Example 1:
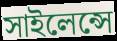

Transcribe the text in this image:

সাইলেন্সে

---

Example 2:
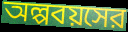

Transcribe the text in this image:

অল্পবয়সের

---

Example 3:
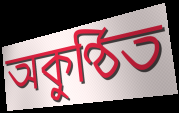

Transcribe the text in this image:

অকুণ্ঠিত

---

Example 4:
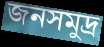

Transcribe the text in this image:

জনসমুদ্র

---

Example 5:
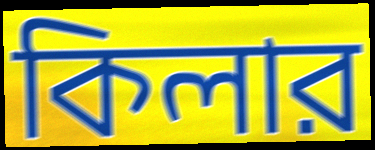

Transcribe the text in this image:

কিলার